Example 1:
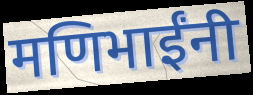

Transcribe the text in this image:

मणिभाईंनी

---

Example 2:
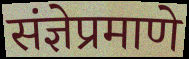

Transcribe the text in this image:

संज्ञेप्रमाणे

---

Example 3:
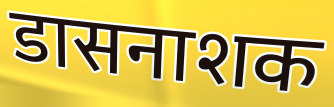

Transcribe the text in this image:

डासनाशक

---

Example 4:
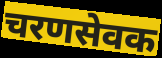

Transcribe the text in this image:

चरणसेवक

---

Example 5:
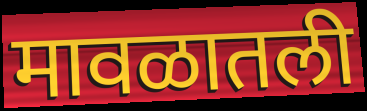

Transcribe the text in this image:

मावळातली